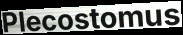
Plecostomus